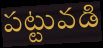
పట్టువడి